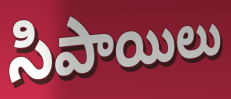
సిపాయిలు